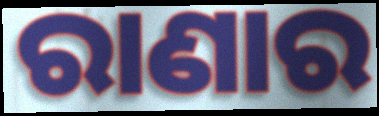
ରାଣାର